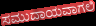
ಸಮುದಾಯವಾಗಲಿ